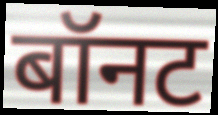
बॉनट